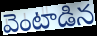
వెంటాడిన